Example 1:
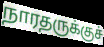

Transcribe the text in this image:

நாரதருக்குச்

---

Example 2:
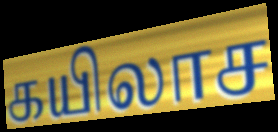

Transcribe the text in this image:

கயிலாச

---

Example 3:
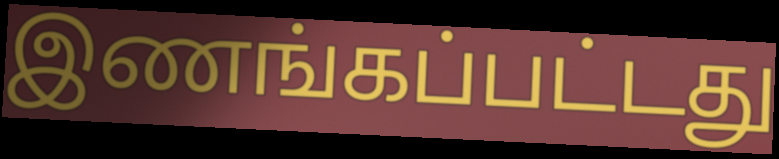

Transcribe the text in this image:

இணங்கப்பட்டது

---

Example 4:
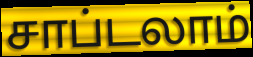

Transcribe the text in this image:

சாப்டலாம்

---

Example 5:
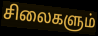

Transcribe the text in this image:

சிலைகளும்